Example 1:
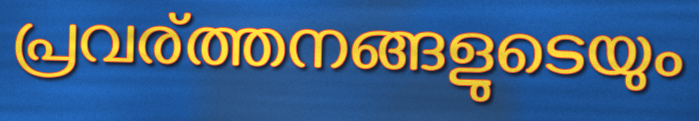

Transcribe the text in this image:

പ്രവര്ത്തനങ്ങളുടെയും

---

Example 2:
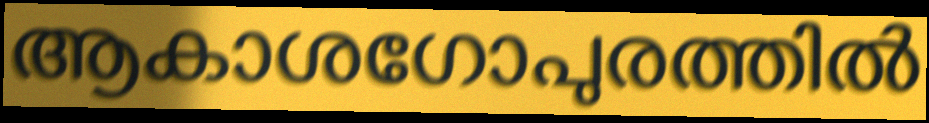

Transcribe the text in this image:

ആകാശഗോപുരത്തിൽ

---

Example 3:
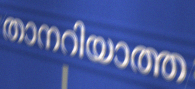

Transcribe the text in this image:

താനറിയാത്ത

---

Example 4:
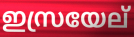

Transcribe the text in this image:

ഇസ്രയേല്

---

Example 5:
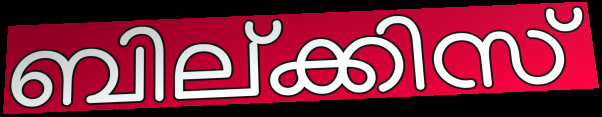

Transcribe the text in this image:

ബില്ക്കിസ്